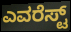
ಎವರೆಸ್ಟ್